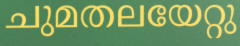
ചുമതലയേറ്റു